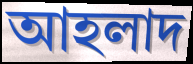
আহলাদ